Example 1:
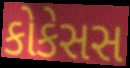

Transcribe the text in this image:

કોકેસસ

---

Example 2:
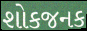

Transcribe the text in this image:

શોકજનક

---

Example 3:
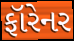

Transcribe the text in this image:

ફૉરેનર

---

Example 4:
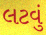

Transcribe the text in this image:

લટવું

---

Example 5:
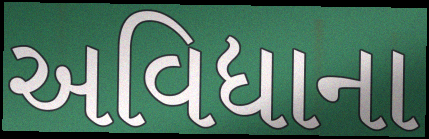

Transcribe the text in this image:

અવિદ્યાના